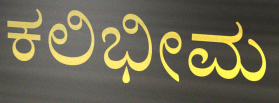
ಕಲಿಭೀಮ